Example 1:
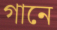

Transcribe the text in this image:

গানে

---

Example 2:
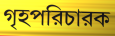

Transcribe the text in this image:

গৃহপরিচারক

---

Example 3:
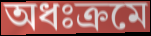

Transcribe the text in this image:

অধঃক্রমে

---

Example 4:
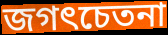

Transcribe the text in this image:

জগৎচেতনা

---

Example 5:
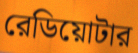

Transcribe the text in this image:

রেডিয়োটার